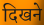
दिखने